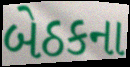
બેઠકના